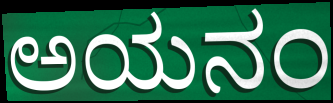
ಅಯನಂ